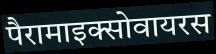
पैरामाइक्सोवायरस